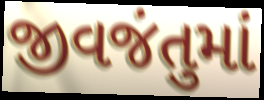
જીવજંતુમાં